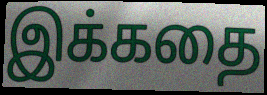
இக்கதை